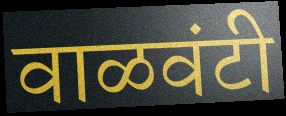
वाळवंटी